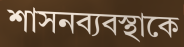
শাসনব্যবস্থাকে